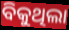
ବିକୁଥିଲା